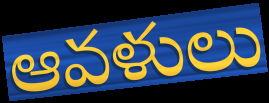
ఆవళులు